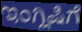
ಇಂಗ್ಲಿಷಿಗೆ